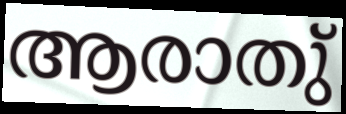
ആരാതു്